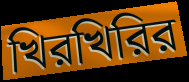
খিরখিরির